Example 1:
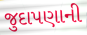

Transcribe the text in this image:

જુદાપણાની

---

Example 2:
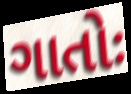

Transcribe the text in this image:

ગાતોઃ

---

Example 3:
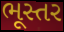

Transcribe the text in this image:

ભૂસ્તર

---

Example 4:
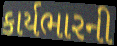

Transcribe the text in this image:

કાર્યભારની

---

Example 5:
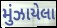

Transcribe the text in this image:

મુંઝાયેલા